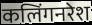
कलिंगनरेश